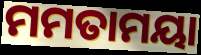
ମମତାମୟା